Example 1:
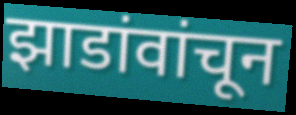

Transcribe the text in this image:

झाडांवांचून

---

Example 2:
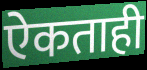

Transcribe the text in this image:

ऐकताही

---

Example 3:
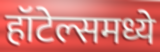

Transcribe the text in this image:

हॉटेल्समध्ये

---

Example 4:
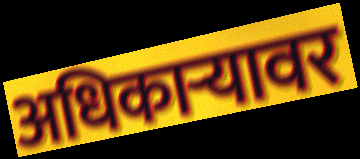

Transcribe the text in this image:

अधिकाऱ्यावर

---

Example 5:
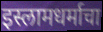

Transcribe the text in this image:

इस्लामधर्माचा